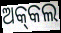
ଅକ୍‍କଲ